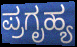
ಪ್ರಗೃಹ್ಯ